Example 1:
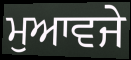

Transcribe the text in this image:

ਮੁਆਵਜੇ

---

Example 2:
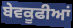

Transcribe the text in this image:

ਬੇਵਕੂਫੀਆਂ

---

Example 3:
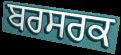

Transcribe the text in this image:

ਬਰਸਰਕ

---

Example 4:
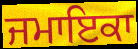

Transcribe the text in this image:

ਜਮਾਇਕਾ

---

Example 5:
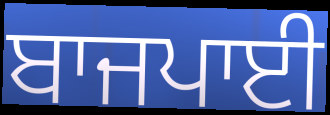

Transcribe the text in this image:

ਬਾਜਪਾਈ